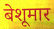
बेशूमार